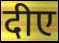
दीए